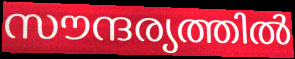
സൗന്ദര്യത്തിൽ